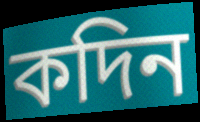
কদিন